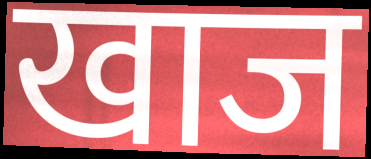
खाज